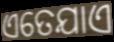
ଏତେଯାଏ